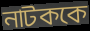
নাটককে